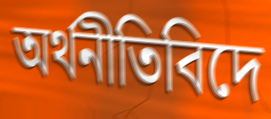
অৰ্থনীতিবিদে